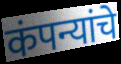
कंपन्यांचे